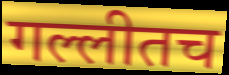
गल्लीतच